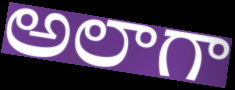
అలాగా